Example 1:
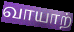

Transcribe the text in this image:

வாயாற்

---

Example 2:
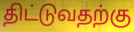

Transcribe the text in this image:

திட்டுவதற்கு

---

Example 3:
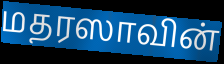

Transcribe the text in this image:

மதரஸாவின்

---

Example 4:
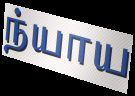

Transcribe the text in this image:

ந்யாய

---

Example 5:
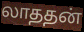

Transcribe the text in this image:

லாததன்